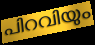
പിറവിയും